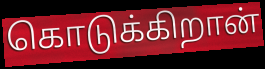
கொடுக்கிறான்